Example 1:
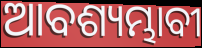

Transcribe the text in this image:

ଆବଶ୍ୟମ୍ଭାବୀ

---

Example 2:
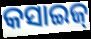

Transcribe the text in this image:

କସାଇଜ୍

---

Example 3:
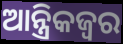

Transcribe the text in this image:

ଆନ୍ତ୍ରିକଜ୍ଵର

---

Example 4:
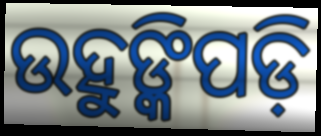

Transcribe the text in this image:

ଉହୁଙ୍କିପଡ଼ି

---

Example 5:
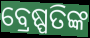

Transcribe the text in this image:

ବ୍ରେଷ୍ପତିଙ୍କ